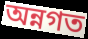
অন্নগত